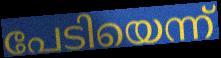
പേടിയെന്ന്